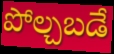
పోల్చబడే